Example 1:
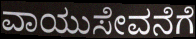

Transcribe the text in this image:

ವಾಯುಸೇವನೆಗೆ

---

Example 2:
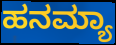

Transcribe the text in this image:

ಹನಮ್ಯಾ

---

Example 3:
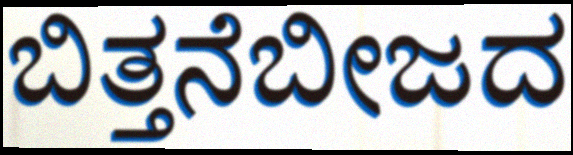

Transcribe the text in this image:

ಬಿತ್ತನೆಬೀಜದ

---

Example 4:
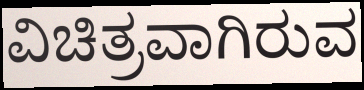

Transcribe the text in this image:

ವಿಚಿತ್ರವಾಗಿರುವ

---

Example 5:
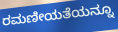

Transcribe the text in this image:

ರಮಣೀಯತೆಯನ್ನೂ